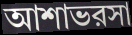
আশাভরসা